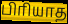
பிரியாத